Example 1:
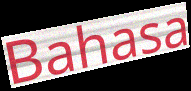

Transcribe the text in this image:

Bahasa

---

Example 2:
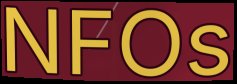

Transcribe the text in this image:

NFOs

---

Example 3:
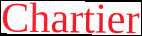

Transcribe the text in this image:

Chartier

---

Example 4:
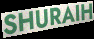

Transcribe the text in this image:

SHURAIH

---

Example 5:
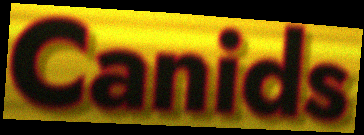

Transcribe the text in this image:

Canids